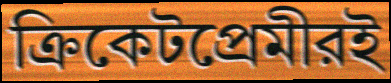
ক্রিকেটপ্রেমীরই